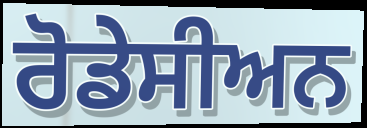
ਰੋਡੇਸੀਅਨ